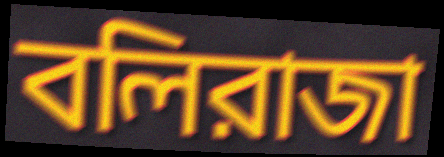
বলিরাজা